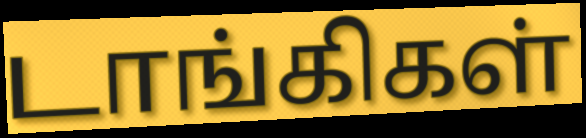
டாங்கிகள்